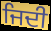
ਜਿਦੀ